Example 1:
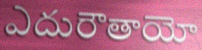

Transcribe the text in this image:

ఎదురౌతాయో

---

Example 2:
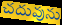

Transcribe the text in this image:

చదువును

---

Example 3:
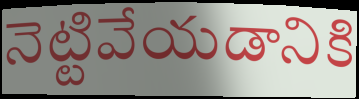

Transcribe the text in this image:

నెట్టివేయడానికి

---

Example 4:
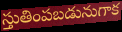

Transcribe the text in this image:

స్తుతింపబడునుగాక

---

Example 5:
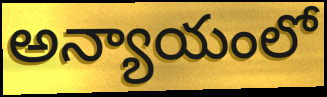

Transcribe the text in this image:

అన్యాయంలో